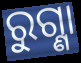
ରୁଗ୍ଣା